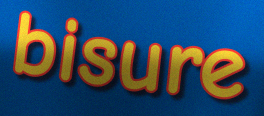
bisure